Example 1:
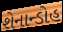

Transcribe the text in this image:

શેનાન્ડોહ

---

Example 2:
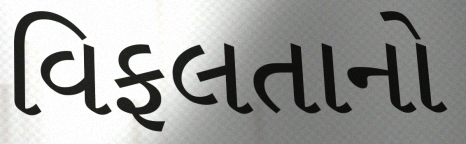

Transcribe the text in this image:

વિફલતાનો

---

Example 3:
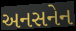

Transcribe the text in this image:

અનસનેન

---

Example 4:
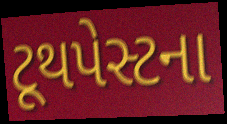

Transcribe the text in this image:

ટૂથપેસ્ટના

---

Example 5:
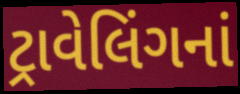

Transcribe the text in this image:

ટ્રાવેલિંગનાં